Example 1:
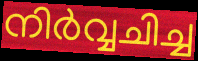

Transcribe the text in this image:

നിർവ്വചിച്ച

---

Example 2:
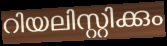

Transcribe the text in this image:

റിയലിസ്റ്റിക്കും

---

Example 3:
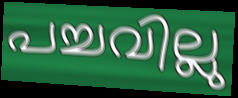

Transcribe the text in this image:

പച്ചവില്ലു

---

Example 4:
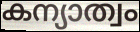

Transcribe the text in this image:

കന്യാത്വം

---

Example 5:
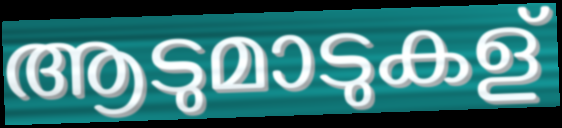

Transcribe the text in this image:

ആടുമാടുകള്